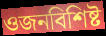
ওজনবিশিষ্ট